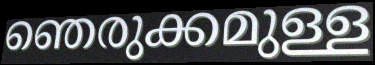
ഞെരുക്കമുള്ള